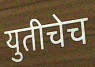
युतीचेच